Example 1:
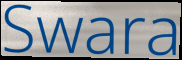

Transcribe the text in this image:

Swara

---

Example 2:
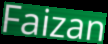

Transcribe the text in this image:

Faizan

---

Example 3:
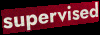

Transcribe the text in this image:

supervised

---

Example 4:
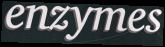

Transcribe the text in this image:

enzymes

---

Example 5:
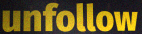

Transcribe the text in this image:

unfollow